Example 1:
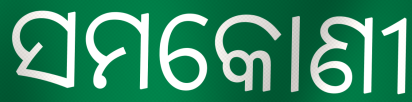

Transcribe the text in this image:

ସମକୋଣୀ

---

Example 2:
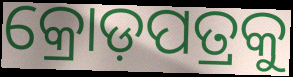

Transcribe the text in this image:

କ୍ରୋଡ଼ପତ୍ରକୁ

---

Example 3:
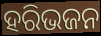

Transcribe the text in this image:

ହରିଭଜନ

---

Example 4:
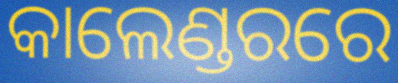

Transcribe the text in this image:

କାଲେଣ୍ଡରରେ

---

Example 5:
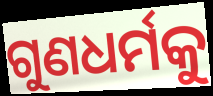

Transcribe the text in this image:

ଗୁଣଧର୍ମକୁ